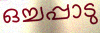
ഒച്ചപ്പാടു